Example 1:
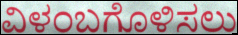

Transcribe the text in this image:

ವಿಳಂಬಗೊಳಿಸಲು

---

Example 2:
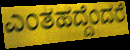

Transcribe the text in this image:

ಎಂತಹದ್ದೆಂದರೆ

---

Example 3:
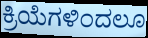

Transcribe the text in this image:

ಕ್ರಿಯೆಗಳಿಂದಲೂ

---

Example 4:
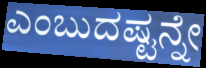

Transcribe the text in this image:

ಎಂಬುದಷ್ಟನ್ನೇ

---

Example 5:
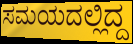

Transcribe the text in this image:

ಸಮಯದಲ್ಲಿದ್ದ